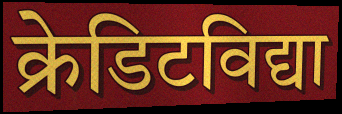
क्रेडिटविद्या